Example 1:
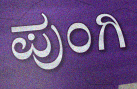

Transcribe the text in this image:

ಪುಂಗಿ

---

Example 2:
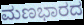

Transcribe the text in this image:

ಮಣಭಾರದ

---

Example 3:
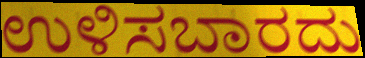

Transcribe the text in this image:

ಉಳಿಸಬಾರದು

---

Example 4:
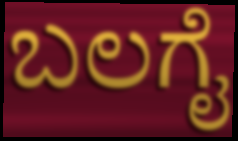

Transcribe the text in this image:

ಬಲಗೈ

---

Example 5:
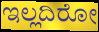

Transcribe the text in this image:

ಇಲ್ಲದಿರೋ